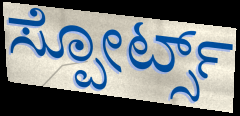
ಸ್ಪೋರ್ಟ್ಸ್